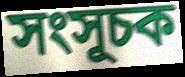
সংসূচক